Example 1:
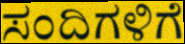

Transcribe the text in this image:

ಸಂದಿಗಳಿಗೆ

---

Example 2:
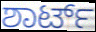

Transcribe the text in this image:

ಶಾರ್ಟ್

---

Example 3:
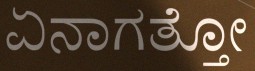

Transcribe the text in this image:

ಏನಾಗತ್ತೋ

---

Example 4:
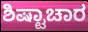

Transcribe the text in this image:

ಶಿಷ್ಟಾಚಾರ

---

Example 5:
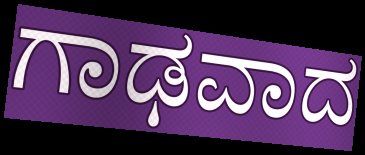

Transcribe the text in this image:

ಗಾಢವಾದ